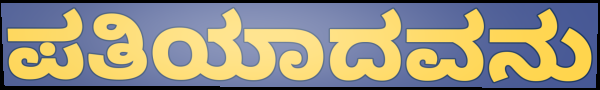
ಪತಿಯಾದವನು